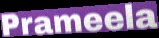
Prameela